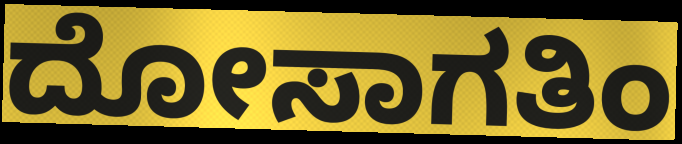
ದೋಸಾಗತಿಂ